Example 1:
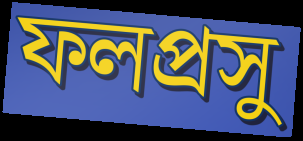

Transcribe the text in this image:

ফলপ্ৰসু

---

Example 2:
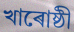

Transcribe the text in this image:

খাৰোষ্ঠী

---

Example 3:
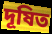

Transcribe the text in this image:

দূষিত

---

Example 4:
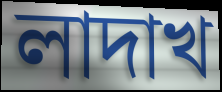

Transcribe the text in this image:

লাদাখ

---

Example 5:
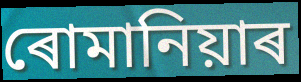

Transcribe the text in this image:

ৰোমানিয়াৰ